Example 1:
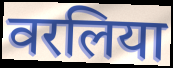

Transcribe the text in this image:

वरलिया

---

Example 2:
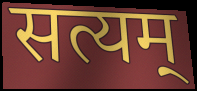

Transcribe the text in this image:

सत्यम्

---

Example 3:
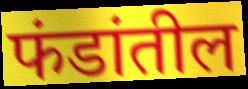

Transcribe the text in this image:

फंडांतील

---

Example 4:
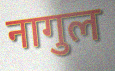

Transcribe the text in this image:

नागुल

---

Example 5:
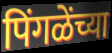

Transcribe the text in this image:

पिंगळेंच्या